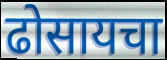
ढोसायचा